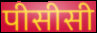
पीसीसी